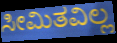
ಸೀಮಿತವಿಲ್ಲ